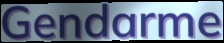
Gendarme